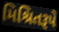
મિશ્રિતરૂપે